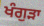
ਖੰਗੁੜਾ